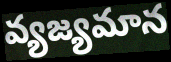
వ్యజ్యమాన